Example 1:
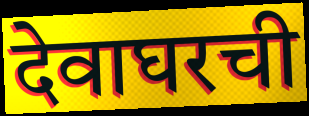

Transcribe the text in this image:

देवाघरची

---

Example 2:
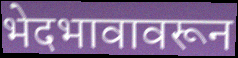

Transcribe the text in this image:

भेदभावावरून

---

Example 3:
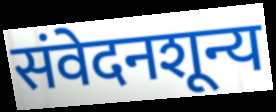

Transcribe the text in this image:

संवेदनशून्य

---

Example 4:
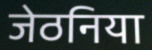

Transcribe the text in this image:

जेठनिया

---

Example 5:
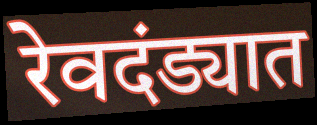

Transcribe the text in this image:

रेवदंड्यात